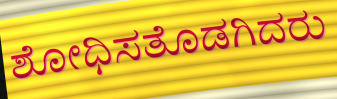
ಶೋಧಿಸತೊಡಗಿದರು